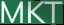
MKT